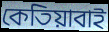
কেতিয়াবাই